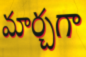
మార్చగా